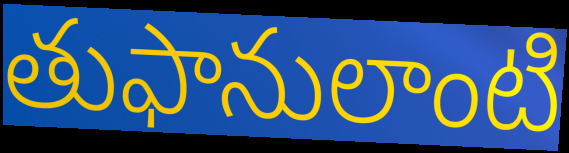
తుఫానులాంటి